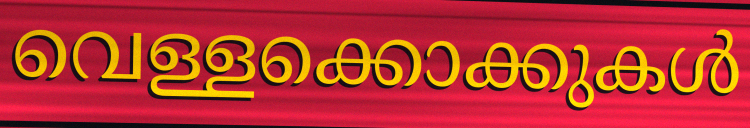
വെള്ളക്കൊക്കുകൾ